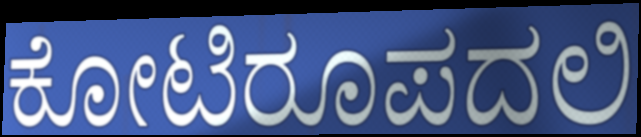
ಕೋಟಿರೂಪದಲಿ